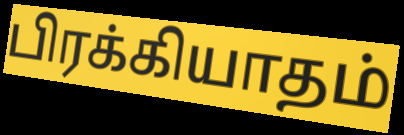
பிரக்கியாதம்